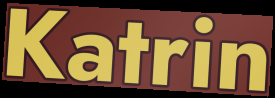
Katrin